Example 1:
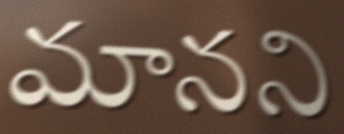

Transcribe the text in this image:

మానని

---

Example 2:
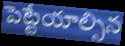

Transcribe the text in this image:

పెట్టేయాల్సిన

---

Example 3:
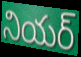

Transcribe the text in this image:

నియర్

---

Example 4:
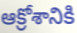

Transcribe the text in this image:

ఆక్రోశానికి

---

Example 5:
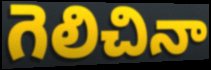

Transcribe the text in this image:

గెలిచినా